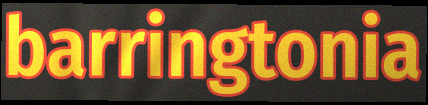
barringtonia